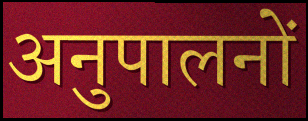
अनुपालनों